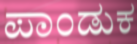
ಪಾಂಡುಕ